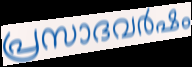
പ്രസാദവർഷം